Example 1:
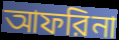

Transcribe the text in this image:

আফরিনা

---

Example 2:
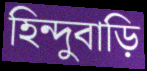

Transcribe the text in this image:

হিন্দুবাড়ি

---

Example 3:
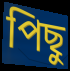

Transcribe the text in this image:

পিছু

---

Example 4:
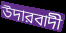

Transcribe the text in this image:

উদারবাদী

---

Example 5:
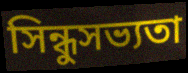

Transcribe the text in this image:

সিন্ধুসভ্যতা